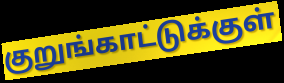
குறுங்காட்டுக்குள்